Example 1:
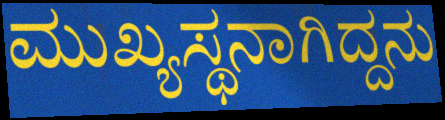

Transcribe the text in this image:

ಮುಖ್ಯಸ್ಥನಾಗಿದ್ದನು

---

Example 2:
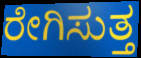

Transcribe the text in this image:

ರೇಗಿಸುತ್ತ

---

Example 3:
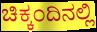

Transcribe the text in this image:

ಚಿಕ್ಕಂದಿನಲ್ಲಿ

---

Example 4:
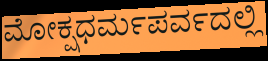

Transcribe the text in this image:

ಮೋಕ್ಷಧರ್ಮಪರ್ವದಲ್ಲಿ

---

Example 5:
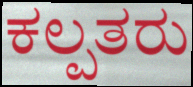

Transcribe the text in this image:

ಕಲ್ಪತರು